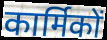
कार्मिकों